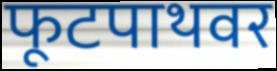
फूटपाथवर